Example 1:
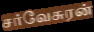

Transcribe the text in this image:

சர்வேசுரன்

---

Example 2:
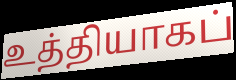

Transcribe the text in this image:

உத்தியாகப்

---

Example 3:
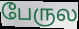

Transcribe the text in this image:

பேருல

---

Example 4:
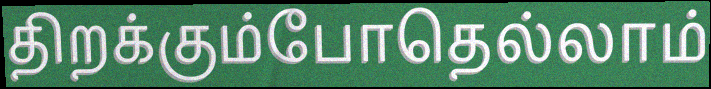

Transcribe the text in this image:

திறக்கும்போதெல்லாம்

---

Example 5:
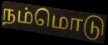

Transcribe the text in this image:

நம்மொடு